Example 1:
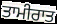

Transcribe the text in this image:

ਤਾਮੀਰਾਤ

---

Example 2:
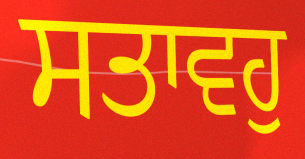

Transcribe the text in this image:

ਸਤਾਵਹੁ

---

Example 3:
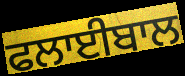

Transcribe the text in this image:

ਫਲਾਈਬਾਲ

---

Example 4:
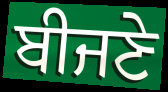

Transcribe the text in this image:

ਬੀਜਣੇ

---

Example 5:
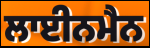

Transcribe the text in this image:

ਲਾਈਨਮੈਨ